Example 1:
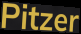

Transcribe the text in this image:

Pitzer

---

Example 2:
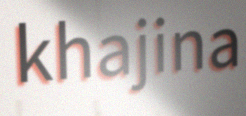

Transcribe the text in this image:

khajina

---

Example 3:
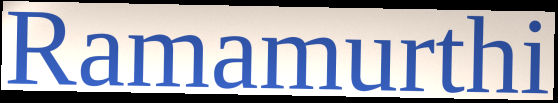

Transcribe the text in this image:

Ramamurthi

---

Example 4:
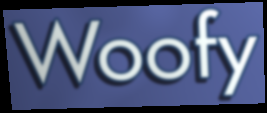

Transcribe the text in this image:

Woofy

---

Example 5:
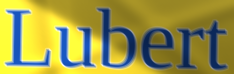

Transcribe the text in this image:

Lubert